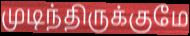
முடிந்திருக்குமே